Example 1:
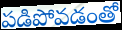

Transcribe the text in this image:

పడిపోవడంతో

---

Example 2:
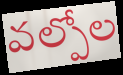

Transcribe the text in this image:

వల్పోల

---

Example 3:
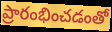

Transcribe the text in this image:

ప్రారంభించడంతో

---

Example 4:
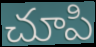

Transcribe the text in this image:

చూపి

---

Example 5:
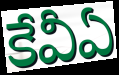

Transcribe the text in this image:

కేవీఏ